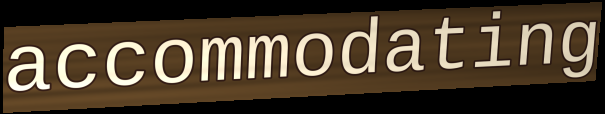
accommodating